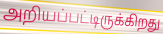
அறியப்பட்டிருக்கிறது